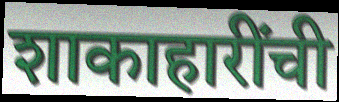
शाकाहारींची